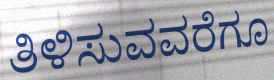
ತಿಳಿಸುವವರೆಗೂ